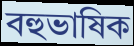
বহুভাষিক